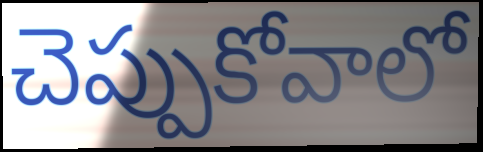
చెప్పుకోవాలో